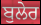
ਬੁਲੇਰ